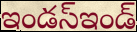
ఇండస్ఇండ్